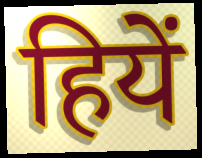
हियें